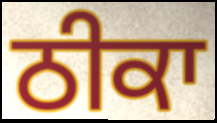
ਠੀਕਾ